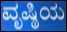
ವೃಷ್ಠಿಯ